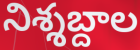
నిశ్శబ్దాల